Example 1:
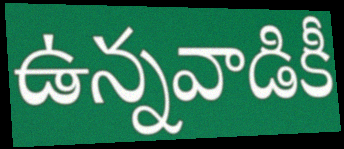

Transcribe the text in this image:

ఉన్నవాడికీ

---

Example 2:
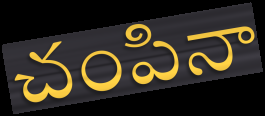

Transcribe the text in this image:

చంపినా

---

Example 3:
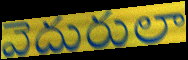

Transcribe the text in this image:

వెదురులా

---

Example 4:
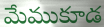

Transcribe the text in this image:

మేముకూడ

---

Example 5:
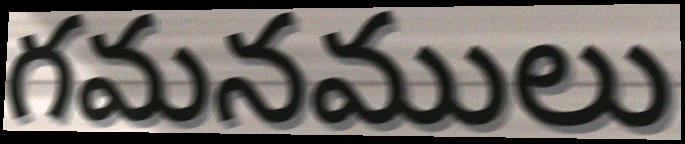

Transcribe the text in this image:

గమనములు